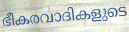
ഭീകരവാദികളുടെ